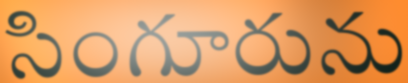
సింగూరును